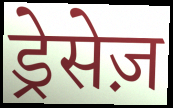
ड्रेसेज़